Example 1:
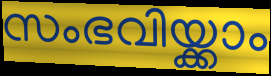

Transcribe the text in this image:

സംഭവിയ്ക്കാം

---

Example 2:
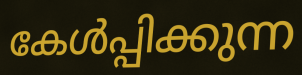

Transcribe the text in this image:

കേൾപ്പിക്കുന്ന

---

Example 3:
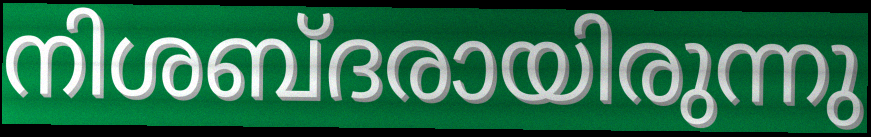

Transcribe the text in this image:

നിശബ്ദരായിരുന്നു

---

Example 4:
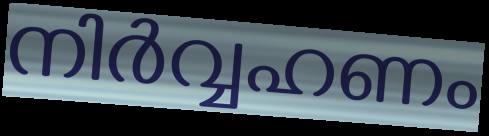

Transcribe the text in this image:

നിർവ്വഹണം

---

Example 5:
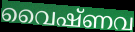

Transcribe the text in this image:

വൈഷ്ണവ